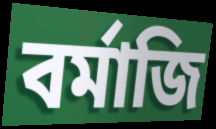
বর্মাজি